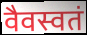
वैवस्वतं